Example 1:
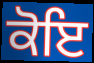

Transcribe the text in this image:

ਕੋਇ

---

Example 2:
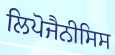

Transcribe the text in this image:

ਲਿਪੋਜੈਨੀਸਿਸ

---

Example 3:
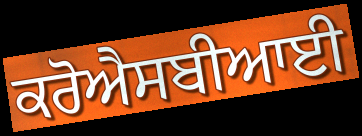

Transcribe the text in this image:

ਕਰੋਐਸਬੀਆਈ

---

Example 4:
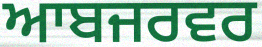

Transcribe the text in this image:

ਆਬਜਰਵਰ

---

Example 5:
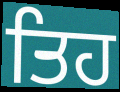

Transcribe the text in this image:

ਤਿਹ